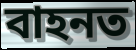
বাহনত